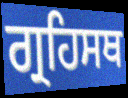
ਗ੍ਰਹਿਸਥ